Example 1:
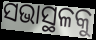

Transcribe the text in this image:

ସଭାସ୍ଥଳକୁ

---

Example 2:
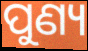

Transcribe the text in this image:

ପୁଣ୍ୟ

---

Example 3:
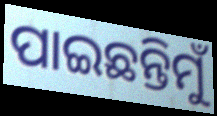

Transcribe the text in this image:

ପାଇଛନ୍ତିମୁଁ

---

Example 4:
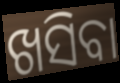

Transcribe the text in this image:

ଖସିବା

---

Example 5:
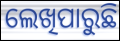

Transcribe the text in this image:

ଲେଖିପାରୁଛି